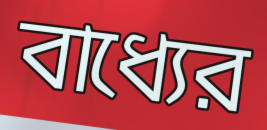
বাধ্যের